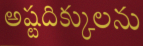
అష్టదిక్కులను